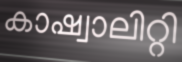
കാഷ്വാലിറ്റി